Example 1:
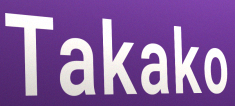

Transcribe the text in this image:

Takako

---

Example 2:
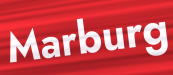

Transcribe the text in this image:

Marburg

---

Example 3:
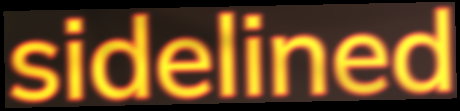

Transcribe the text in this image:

sidelined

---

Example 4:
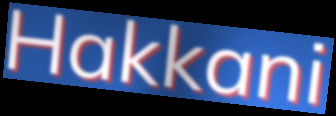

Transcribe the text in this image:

Hakkani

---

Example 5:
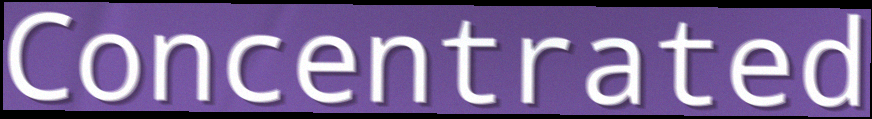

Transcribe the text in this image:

Concentrated